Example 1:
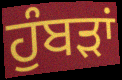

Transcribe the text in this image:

ਹੁੰਬੜਾਂ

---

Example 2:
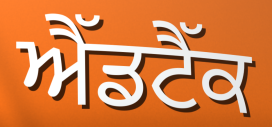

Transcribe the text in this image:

ਐੱਡਟੈੱਕ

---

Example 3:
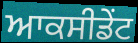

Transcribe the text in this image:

ਆਕਸੀਡੇਂਟ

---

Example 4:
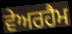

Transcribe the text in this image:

ਵੇਅਰਹੈਮ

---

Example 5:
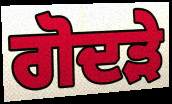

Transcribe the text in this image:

ਗੋਦੜੇ